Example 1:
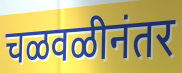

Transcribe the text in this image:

चळवळीनंतर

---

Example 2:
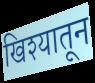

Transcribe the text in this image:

खिश्यातून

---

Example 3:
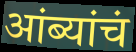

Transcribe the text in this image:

आंब्यांचं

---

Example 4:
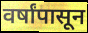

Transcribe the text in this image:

वर्षांपासून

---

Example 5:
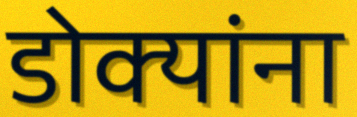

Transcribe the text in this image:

डोक्यांना